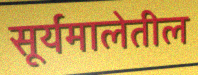
सूर्यमालेतील